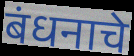
बंधनाचे